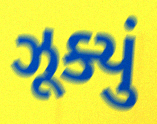
ઝૂક્યું